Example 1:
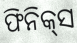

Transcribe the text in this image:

ଫିନିକ୍‌ସ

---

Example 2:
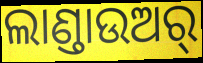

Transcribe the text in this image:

ଲାଣ୍ଡାଉଅର୍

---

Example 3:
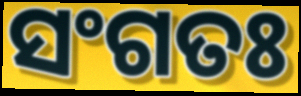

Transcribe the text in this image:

ସଂଗତଃ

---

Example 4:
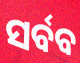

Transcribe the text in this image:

ସର୍ବବ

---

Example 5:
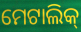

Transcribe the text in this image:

ମେଟାଲିକ୍